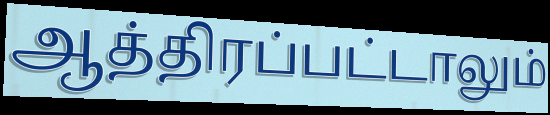
ஆத்திரப்பட்டாலும்